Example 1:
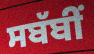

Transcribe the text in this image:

ਸਬੱਬੀਂ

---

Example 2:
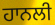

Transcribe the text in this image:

ਹਾਨਲੀ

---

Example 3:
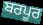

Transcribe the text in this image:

ਬਰਪੂਰ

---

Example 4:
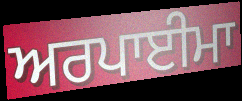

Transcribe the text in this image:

ਅਰਪਾਈਮਾ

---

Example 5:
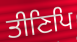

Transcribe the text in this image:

ਤੀਣਿਪਿ